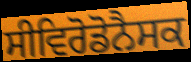
ਸੀਵਿਰੋਡੋਨੈਸਕ